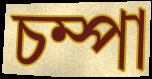
চম্পা